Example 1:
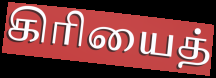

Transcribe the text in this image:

கிரியைத்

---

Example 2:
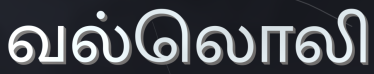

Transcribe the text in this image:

வல்லொலி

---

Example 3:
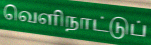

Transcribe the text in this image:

வெளிநாட்டுப்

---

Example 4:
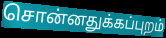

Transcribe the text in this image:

சொன்னதுக்கப்புறம்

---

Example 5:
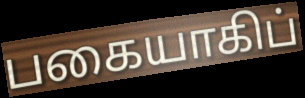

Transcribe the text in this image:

பகையாகிப்